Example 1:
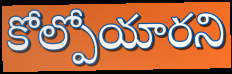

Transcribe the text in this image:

కోల్పోయారని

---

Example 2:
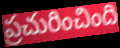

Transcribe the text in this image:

ప్రచురించింది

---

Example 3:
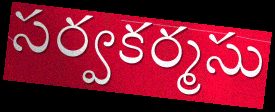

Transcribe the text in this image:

సర్వకర్మసు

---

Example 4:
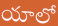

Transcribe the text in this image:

యాలో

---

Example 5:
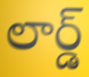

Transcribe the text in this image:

లార్డ్